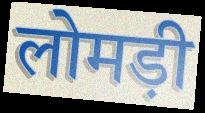
लोमड़ी